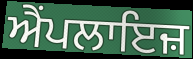
ਐਂਪਲਾਇਜ਼